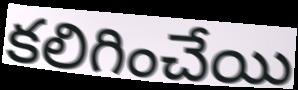
కలిగించేయి